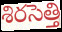
శిరసెత్తి